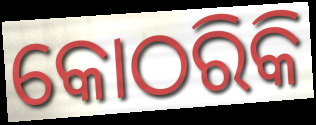
କୋଠରିକି